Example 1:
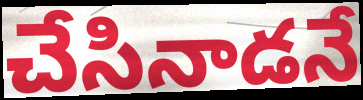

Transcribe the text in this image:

చేసినాడనే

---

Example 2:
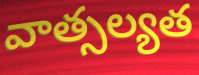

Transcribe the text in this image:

వాత్సల్యత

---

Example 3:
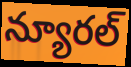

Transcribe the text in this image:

న్యూరల్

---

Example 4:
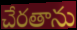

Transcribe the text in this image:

చేరతాను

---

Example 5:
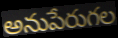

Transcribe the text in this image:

అనుపేరుగల